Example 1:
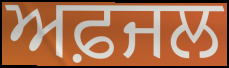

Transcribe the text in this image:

ਅਫ਼ਜਲ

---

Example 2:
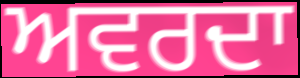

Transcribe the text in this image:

ਅਵਰਦਾ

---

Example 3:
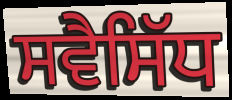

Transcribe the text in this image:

ਸਵੈਸਿੱਧ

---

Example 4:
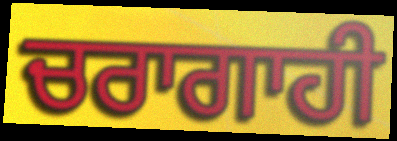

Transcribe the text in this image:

ਚਰਾਗਾਹੀ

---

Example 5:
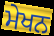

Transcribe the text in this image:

ਮੇਖਨ